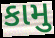
કામુ